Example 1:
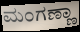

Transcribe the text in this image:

ಮಂಗಣ್ಣಾ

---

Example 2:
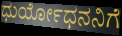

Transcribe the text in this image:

ಧುರ್ಯೋಧನನಿಗೆ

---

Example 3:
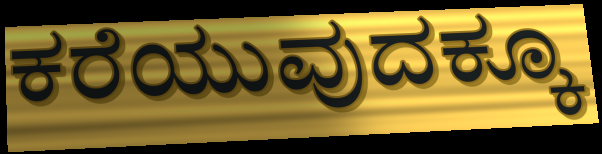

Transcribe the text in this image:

ಕರೆಯುವುದಕ್ಕೂ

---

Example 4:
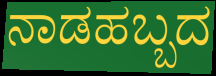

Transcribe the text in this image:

ನಾಡಹಬ್ಬದ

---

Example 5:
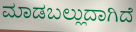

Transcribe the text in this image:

ಮಾಡಬಲ್ಲುದಾಗಿದೆ